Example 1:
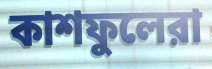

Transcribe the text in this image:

কাশফুলেরা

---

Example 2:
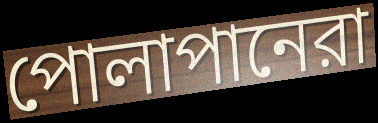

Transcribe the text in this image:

পোলাপানেরা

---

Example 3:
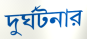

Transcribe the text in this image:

দুর্ঘটনার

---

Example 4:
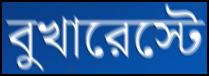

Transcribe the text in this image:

বুখারেস্টে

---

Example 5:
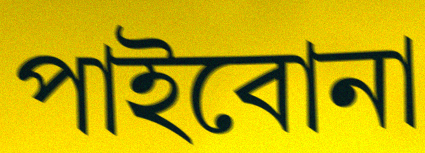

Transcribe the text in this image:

পাইবোনা